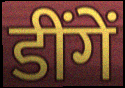
डींगें